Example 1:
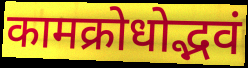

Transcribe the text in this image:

कामक्रोधोद्भवं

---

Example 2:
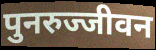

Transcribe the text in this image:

पुनरुज्जीवन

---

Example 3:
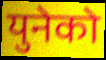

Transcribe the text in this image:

युनेको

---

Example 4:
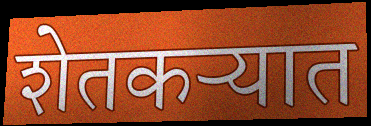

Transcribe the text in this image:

शेतकऱ्यात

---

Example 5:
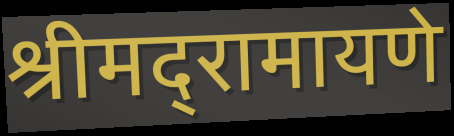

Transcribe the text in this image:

श्रीमद्‌रामायणे